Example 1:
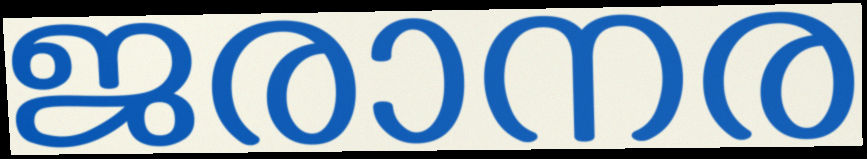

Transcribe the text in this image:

ജരാനര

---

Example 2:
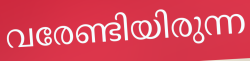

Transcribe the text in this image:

വരേണ്ടിയിരുന്ന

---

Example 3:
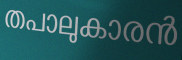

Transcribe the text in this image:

തപാലുകാരൻ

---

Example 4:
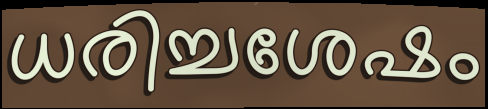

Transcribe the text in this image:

ധരിച്ചശേഷം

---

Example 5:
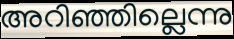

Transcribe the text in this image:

അറിഞ്ഞില്ലെന്നു